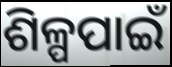
ଶିଳ୍ପପାଇଁ